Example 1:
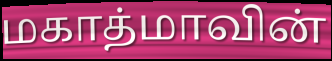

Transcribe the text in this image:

மகாத்மாவின்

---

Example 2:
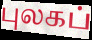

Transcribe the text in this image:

புலகப்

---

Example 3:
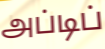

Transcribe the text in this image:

அப்டிப்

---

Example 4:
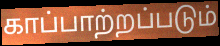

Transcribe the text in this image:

காப்பாற்றப்படும்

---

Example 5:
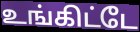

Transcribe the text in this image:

உங்கிட்டே